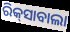
ରିକ୍‌ସାବାଲା